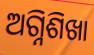
ଅଗ୍ନିଶିଖା